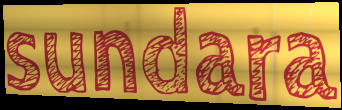
sundara